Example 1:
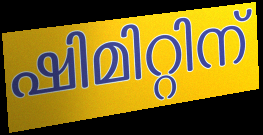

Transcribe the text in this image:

ഷിമിറ്റിന്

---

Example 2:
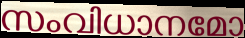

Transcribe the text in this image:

സംവിധാനമോ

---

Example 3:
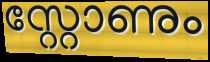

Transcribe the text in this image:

സ്റ്റോണും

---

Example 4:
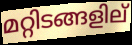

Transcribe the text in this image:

മറ്റിടങ്ങളില്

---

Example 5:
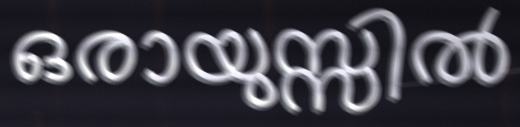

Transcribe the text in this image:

ഒരായുസ്സിൽ